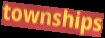
townships